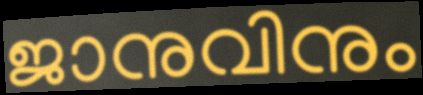
ജാനുവിനും